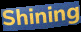
Shining